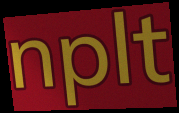
nplt